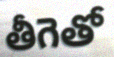
తీగెతో